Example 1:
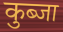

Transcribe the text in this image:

कुब्जा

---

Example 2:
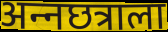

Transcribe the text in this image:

अन्नछत्राला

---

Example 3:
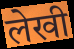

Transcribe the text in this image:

लेखी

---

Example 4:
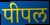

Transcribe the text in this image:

पीपल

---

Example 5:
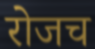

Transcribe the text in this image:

रोजच